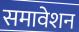
समावेशन